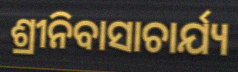
ଶ୍ରୀନିବାସାଚାର୍ଯ୍ୟ